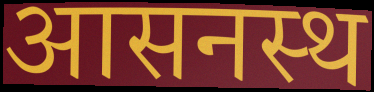
आसनस्थ